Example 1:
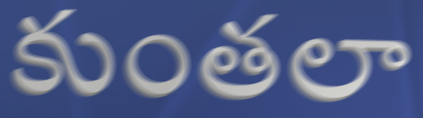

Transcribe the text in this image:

కుంతలా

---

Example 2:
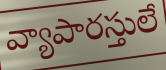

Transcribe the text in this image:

వ్యాపారస్తులే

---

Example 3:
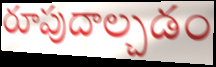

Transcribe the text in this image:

రూపుదాల్చడం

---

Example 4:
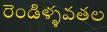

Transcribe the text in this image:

రెండిళ్ళవతల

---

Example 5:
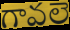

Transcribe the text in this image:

గావలె